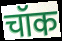
चॉक